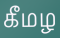
கீமழ